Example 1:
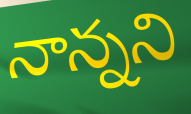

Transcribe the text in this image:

నాన్నని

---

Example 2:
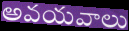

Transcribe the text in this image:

అవయవాలు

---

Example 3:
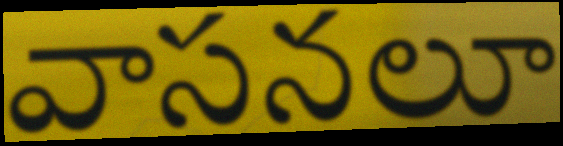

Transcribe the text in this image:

వాసనలూ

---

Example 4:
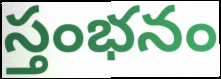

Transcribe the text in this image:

స్తంభనం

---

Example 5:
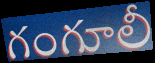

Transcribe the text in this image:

గంగూలీ